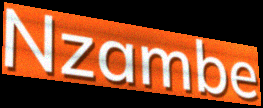
Nzambe